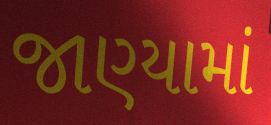
જાણ્યામાં